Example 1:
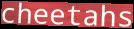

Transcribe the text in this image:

cheetahs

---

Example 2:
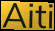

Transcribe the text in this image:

Aiti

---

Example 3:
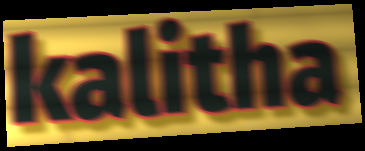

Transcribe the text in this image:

kalitha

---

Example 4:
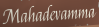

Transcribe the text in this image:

Mahadevamma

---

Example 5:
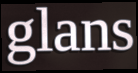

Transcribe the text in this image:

glans